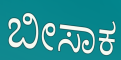
ಬೀಸಾಕ